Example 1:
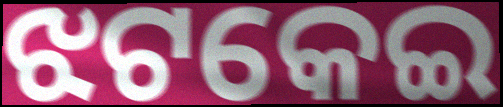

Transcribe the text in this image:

ଝଟକେଇ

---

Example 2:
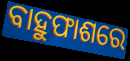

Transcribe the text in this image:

ବାହୁଫାଶରେ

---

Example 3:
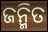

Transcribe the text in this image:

ଜନ୍ମିତ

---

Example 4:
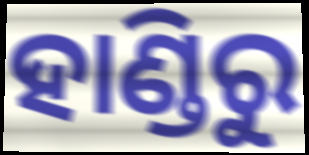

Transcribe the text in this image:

ହାଣ୍ଡିରୁ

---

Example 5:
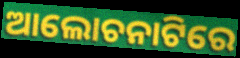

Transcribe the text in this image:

ଆଲୋଚନାଟିରେ